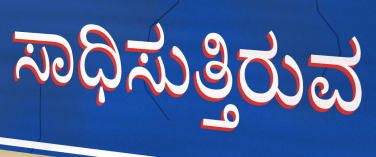
ಸಾಧಿಸುತ್ತಿರುವ